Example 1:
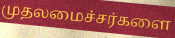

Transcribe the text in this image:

முதலமைச்சர்களை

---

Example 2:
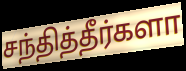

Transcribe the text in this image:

சந்தித்தீர்களா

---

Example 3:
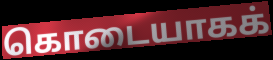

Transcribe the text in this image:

கொடையாகக்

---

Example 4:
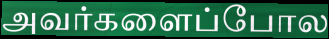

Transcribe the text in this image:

அவர்களைப்போல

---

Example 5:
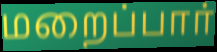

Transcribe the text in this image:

மறைப்பார்